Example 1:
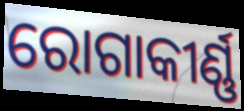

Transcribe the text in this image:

ରୋଗାକୀର୍ଣ୍ଣ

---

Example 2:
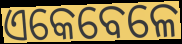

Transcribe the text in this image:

ଏକେବେଳେ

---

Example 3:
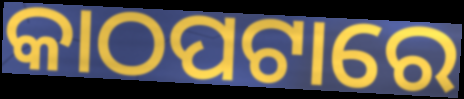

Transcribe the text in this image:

କାଠପଟାରେ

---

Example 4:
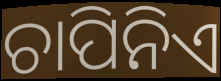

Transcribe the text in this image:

ଚାପିନିଏ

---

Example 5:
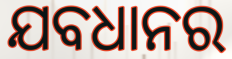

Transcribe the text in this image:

ଯବଧାନର